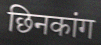
छिनकांग